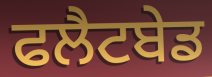
ਫਲੈਟਬੇਡ